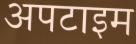
अपटाइम